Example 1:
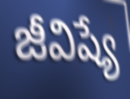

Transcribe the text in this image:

జీవిష్యే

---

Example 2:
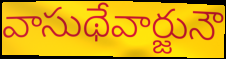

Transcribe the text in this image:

వాసుథేవార్జునౌ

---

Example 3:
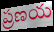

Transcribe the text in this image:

ప్రణయ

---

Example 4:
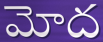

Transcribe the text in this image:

మోద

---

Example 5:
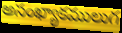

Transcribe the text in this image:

అసంఖ్యాకములుగ